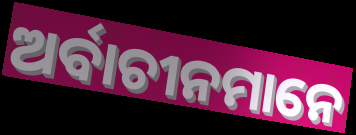
ଅର୍ବାଚୀନମାନେ